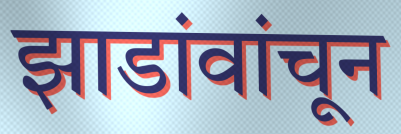
झाडांवांचून